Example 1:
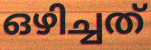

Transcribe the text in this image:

ഒഴിച്ചത്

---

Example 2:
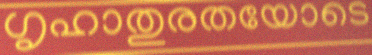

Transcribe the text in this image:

ഗൃഹാതുരതയോടെ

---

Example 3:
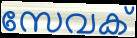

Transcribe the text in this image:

സേവക്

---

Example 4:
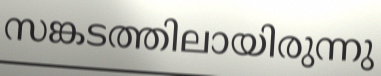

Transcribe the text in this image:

സങ്കടത്തിലായിരുന്നു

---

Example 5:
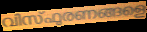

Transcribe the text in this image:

വിസ്ഫുരണങ്ങളെ